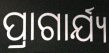
ପ୍ରାଗାର୍ଯ୍ୟ